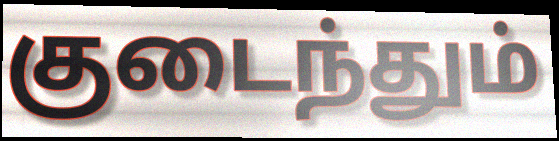
குடைந்தும்